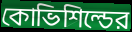
কোভিশিল্ডের